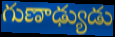
గుణాఢ్యుడు